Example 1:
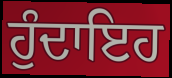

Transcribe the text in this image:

ਹੁੰਦਾਇਹ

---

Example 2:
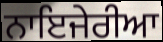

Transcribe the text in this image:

ਨਾਇਜੇਰੀਆ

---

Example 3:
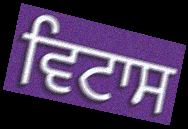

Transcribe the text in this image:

ਵਿਟਾਸ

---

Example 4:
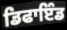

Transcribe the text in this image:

ਡਿਫਾਇੰਡ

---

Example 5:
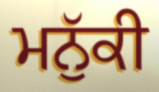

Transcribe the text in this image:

ਮਨੁੱਕੀ